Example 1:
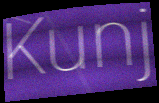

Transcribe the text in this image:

Kunj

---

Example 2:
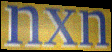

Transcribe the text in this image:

nxn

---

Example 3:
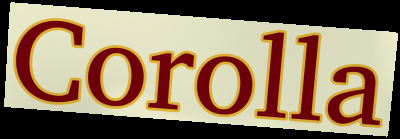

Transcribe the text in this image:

Corolla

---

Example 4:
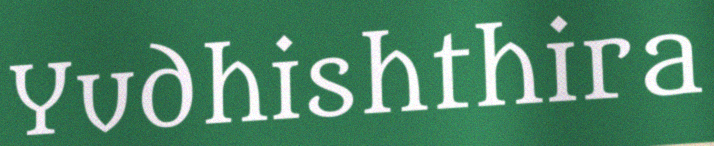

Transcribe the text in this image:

Yudhishthira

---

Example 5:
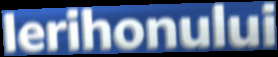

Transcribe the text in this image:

Ierihonului